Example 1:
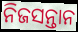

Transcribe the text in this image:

ନିଜସନ୍ତାନ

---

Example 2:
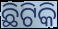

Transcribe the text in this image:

ଛିଟିକି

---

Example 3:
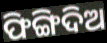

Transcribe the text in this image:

ଫିଙ୍ଗିଦିଅ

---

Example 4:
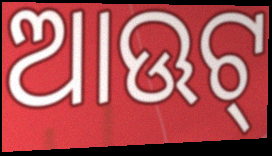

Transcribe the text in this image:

ଆଊଟ୍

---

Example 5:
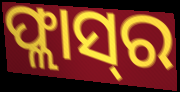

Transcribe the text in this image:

ଫ୍ଲାସ୍‌ର